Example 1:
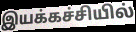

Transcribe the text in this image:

இயக்கச்சியில்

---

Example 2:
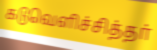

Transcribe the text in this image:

கடுவெளிச்சித்தர்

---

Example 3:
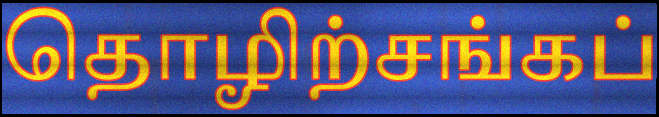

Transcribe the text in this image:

தொழிற்சங்கப்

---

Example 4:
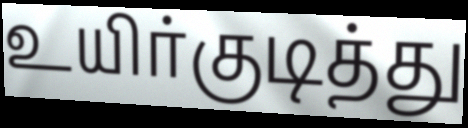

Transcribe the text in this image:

உயிர்குடித்து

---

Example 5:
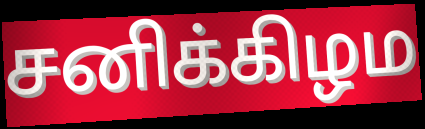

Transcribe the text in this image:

சனிக்கிழம